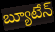
బ్యూటేన్